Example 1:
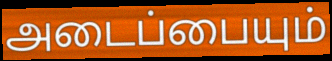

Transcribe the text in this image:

அடைப்பையும்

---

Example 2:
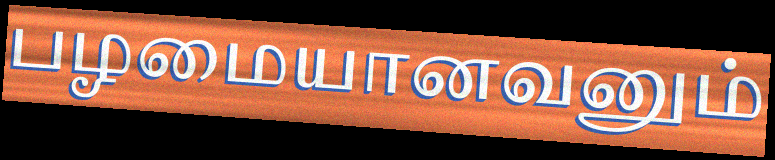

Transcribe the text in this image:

பழமையானவனும்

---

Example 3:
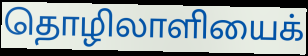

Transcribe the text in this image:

தொழிலாளியைக்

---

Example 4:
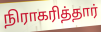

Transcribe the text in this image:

நிராகரித்தார்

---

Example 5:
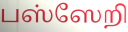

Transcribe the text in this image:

பஸ்ஸேறி